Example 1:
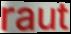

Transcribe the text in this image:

raut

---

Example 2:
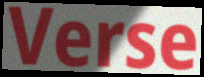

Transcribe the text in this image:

Verse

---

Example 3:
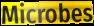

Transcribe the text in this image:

Microbes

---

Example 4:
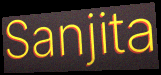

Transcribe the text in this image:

Sanjita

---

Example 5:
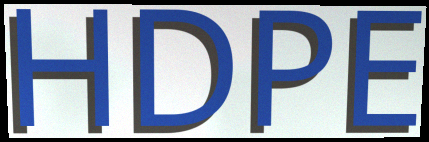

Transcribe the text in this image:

HDPE